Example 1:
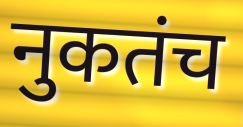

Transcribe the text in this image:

नुकतंच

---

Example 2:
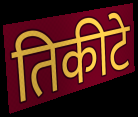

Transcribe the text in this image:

तिकीटे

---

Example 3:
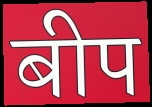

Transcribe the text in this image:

बीप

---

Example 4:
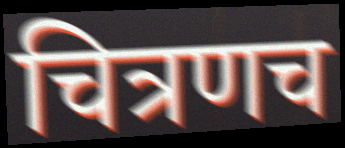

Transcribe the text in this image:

चित्रणच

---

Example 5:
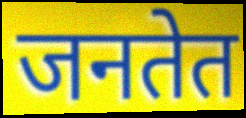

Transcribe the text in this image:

जनतेत